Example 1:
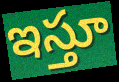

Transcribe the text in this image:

ఇస్తూ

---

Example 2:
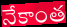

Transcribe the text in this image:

నేకాంత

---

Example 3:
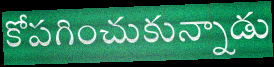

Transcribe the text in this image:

కోపగించుకున్నాడు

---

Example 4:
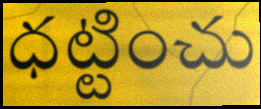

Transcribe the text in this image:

ధట్టించు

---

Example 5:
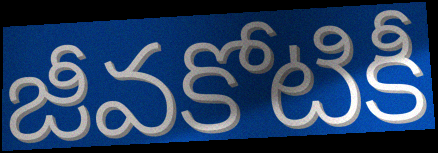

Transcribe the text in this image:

జీవకోటికీ